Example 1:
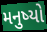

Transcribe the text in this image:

મનુષ્યો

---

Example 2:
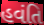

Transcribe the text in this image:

હવંતિ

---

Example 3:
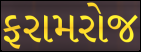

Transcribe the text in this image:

ફરામરોજ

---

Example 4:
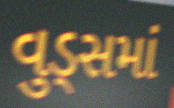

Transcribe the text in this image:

વુડ્સમાં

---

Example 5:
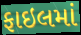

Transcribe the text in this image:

ફાઇલમાં